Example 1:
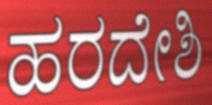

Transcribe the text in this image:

ಹರದೇಶಿ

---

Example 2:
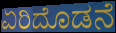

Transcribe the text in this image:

ಏರಿದೊಡನೆ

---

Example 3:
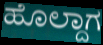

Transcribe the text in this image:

ಹೊಲ್ದಾಗ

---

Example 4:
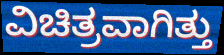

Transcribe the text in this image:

ವಿಚಿತ್ರವಾಗಿತ್ತು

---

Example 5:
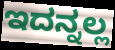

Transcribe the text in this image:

ಇದನ್ನಲ್ಲ